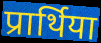
प्रार्थिया